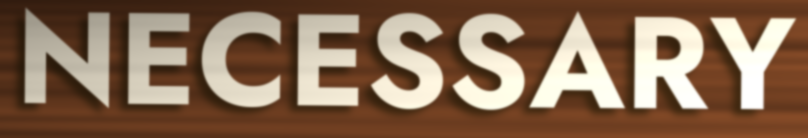
NECESSARY